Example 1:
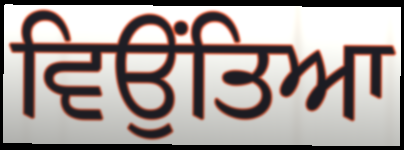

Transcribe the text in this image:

ਵਿਉਂਤਿਆ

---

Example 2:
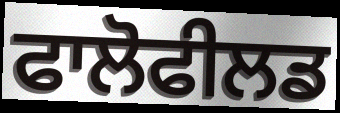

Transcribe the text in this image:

ਫਾਲੋਫੀਲਡ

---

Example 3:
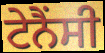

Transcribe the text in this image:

ਟੇਨੈਂਸੀ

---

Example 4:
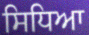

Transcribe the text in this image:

ਸਿਧਿਆ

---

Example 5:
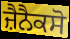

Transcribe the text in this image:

ਜ਼ੈਨੈਕਸੋ